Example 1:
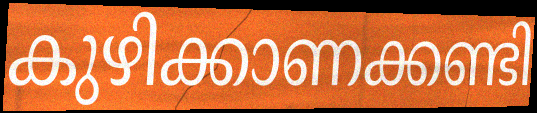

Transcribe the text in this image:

കുഴിക്കാണക്കണ്ടി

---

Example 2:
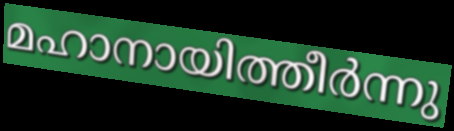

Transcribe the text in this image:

മഹാനായിത്തീർന്നു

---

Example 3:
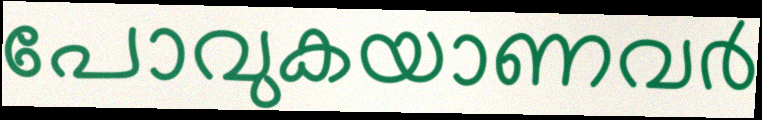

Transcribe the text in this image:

പോവുകയാണവർ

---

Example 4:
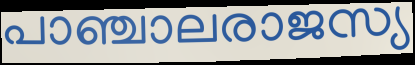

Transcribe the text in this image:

പാഞ്ചാലരാജസ്യ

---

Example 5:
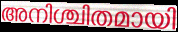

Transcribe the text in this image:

അനിശ്ചിതമായി